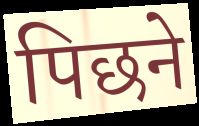
पिछने